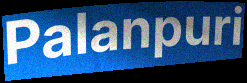
Palanpuri